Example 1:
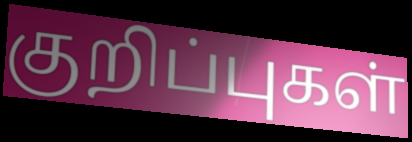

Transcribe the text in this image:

குறிப்புகள்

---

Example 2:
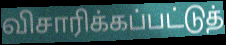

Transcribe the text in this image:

விசாரிக்கப்பட்டுத்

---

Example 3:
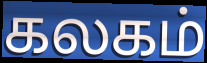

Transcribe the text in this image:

கலகம்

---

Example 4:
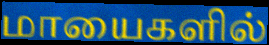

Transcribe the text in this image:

மாயைகளில்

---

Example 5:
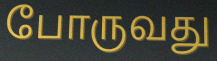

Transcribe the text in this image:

போருவது